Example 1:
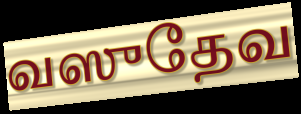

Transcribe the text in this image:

வஸுதேவ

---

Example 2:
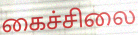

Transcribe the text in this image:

கைச்சிலை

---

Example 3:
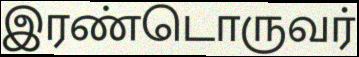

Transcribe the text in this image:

இரண்டொருவர்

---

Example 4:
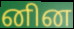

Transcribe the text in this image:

னின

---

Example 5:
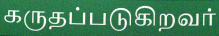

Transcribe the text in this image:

கருதப்படுகிறவர்